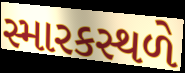
સ્મારકસ્થળે